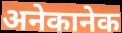
अनेकानेक